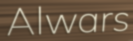
Alwars